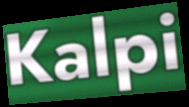
Kalpi